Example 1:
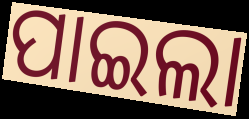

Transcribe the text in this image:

ପାଇଲା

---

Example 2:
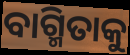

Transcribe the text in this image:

ବାଗ୍ମିତାକୁ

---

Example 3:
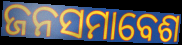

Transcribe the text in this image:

ଜନସମାବେଶ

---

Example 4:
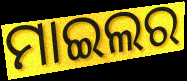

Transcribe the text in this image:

ମାଇଲର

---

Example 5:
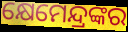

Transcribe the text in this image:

କ୍ଷେମେନ୍ଦ୍ରଙ୍କର